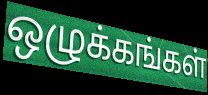
ஒழுக்கங்கள்